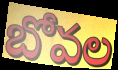
బోవల